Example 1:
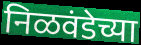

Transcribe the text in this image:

निळवंडेच्या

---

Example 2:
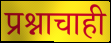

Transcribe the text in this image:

प्रश्नाचाही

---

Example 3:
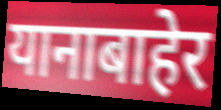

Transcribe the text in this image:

यानाबाहेर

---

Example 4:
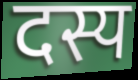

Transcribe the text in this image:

दस्य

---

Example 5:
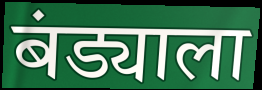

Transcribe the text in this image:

बंड्याला